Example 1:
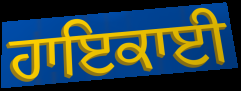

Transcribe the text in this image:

ਹਾਇਕਾਈ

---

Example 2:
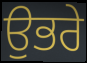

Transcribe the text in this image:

ਉਭਰੇ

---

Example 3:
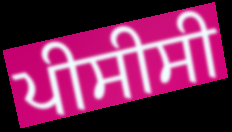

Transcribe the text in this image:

ਪੀਸੀਸੀ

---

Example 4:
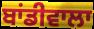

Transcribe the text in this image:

ਬਾਂਡੀਵਾਲਾ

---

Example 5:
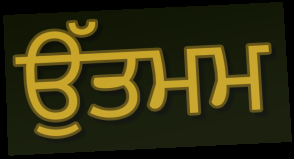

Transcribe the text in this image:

ਉੱਤਮਮ